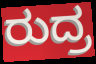
ರುದ್ರ